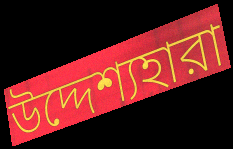
উদ্দেশ্যহারা